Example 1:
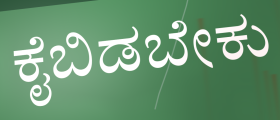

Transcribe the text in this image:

ಕೈಬಿಡಬೇಕು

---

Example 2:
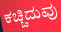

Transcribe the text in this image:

ಕಚ್ಚಿದುವು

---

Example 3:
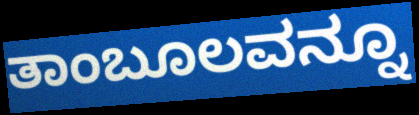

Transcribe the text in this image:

ತಾಂಬೂಲವನ್ನೂ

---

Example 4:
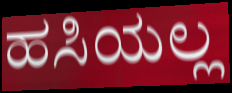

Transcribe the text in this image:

ಹಸಿಯಲ್ಲ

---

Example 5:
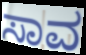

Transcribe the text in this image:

ಸಾವ